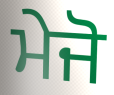
ਮੇਜੋ